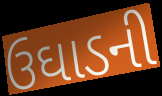
ઉઘાડની